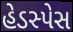
હેડસ્પેસ